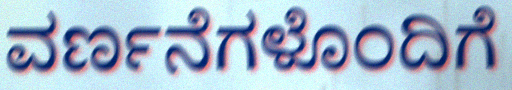
ವರ್ಣನೆಗಳೊಂದಿಗೆ